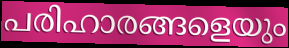
പരിഹാരങ്ങളെയും